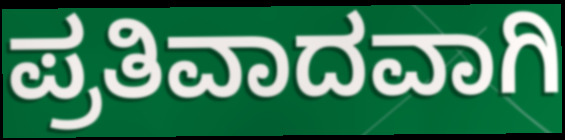
ಪ್ರತಿವಾದವಾಗಿ